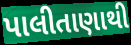
પાલીતાણાથી